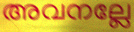
അവനല്ലേ